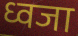
ध्वजा